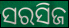
ସରସିଜ